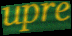
upre